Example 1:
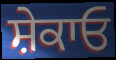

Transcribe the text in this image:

ਸ਼ੇਕਾਓ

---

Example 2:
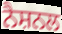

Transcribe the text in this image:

ਨੈਸ਼ਨਲ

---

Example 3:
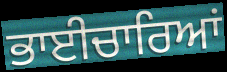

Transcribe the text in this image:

ਭਾਈਚਾਰਿਆਂ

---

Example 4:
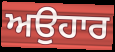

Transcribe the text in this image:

ਅਉਹਾਰ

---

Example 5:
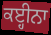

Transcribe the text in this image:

ਕੲ੍ਹੀਨਾ